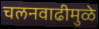
चलनवाढीमुळे